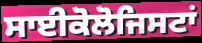
ਸਾਈਕੋਲੋਜਿਸਟਾਂ